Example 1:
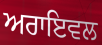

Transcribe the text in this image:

ਅਰਾਇਵਲ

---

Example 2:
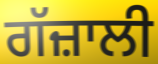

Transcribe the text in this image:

ਗੱਜ਼ਾਲੀ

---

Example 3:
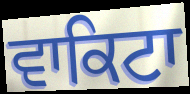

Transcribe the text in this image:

ਵਾਕਿਟਾ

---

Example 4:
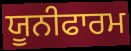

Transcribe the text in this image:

ਯੂਨੀਫਾਰਮ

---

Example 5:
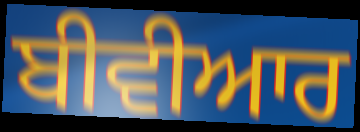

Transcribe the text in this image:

ਬੀਵੀਆਰ